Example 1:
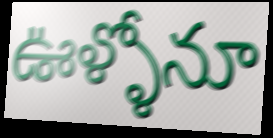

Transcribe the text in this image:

ఊళ్ళోనూ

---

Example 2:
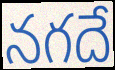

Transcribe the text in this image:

నగదే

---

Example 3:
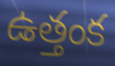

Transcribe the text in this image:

ఉత్తంక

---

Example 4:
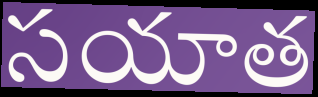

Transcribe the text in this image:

సయాత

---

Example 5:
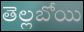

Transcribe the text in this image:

తెల్లబోయి